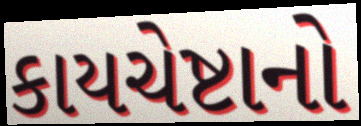
કાયચેષ્ટાનો